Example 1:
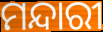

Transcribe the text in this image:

ମନ୍ଦାରୀ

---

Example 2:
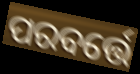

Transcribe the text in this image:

ପରବର୍ତ୍ତେ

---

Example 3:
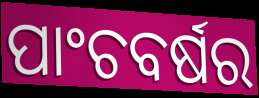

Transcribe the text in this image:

ପାଂଚବର୍ଷର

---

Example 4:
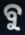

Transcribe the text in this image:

ବୁ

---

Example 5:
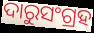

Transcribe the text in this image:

ଦାରୁସଂଗ୍ରହ